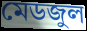
মেডজুল